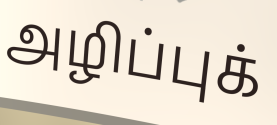
அழிப்புக்